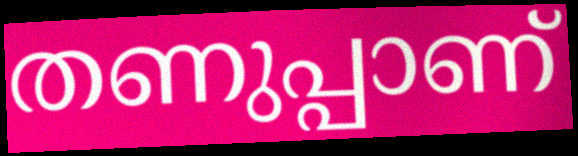
തണുപ്പാണ്